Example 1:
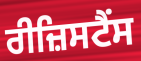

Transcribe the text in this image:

ਰੀਜ਼ਿਸਟੈਂਸ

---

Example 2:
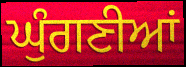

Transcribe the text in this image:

ਘੁੰਗਣੀਆਂ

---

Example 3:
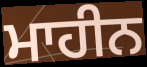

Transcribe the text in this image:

ਮਾਹੀਨ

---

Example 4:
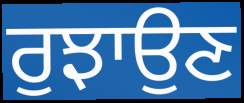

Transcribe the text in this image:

ਰੁਝਾਉਣ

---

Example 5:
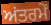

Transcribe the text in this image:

ਅਂਤਰਮੇਂ